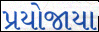
પ્રયોજાયા